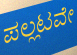
ಪಲ್ಲಟವೇ